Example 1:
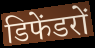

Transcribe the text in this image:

डिफेंडरों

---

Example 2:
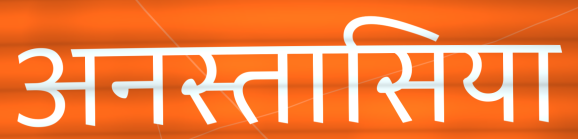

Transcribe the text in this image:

अनस्तासिया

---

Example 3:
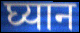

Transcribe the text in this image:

घ्यान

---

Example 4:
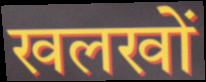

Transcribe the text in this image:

खलखों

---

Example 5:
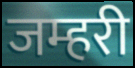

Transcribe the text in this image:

जम्हरी